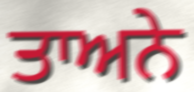
ਤਾਅਨੇ